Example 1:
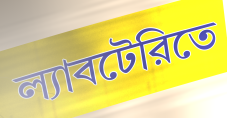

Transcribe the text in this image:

ল্যাবটেরিতে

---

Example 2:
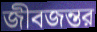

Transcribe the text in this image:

জীবজন্তর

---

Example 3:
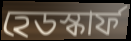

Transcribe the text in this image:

হেডস্কার্ফ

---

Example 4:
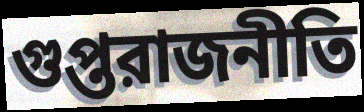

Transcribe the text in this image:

গুপ্তরাজনীতি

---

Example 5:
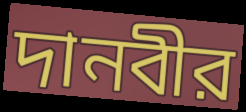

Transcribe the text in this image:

দানবীর